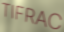
TIFRAC